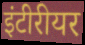
इंटीरीयर